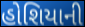
હોશિયાની